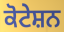
ਕੋਟੇਸ਼ਨ